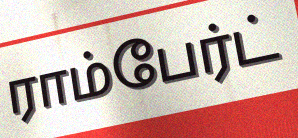
ராம்பேர்ட்